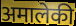
अमालेकी